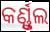
କର୍ଣ୍ଣୁଲ